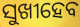
ସୁଖୀହେବ